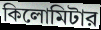
কিলোমিটার